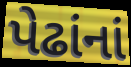
પેઢાંનાં